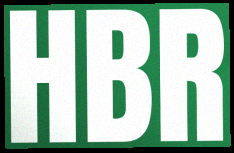
HBR